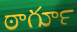
ఠాగూర్‍